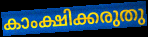
കാംക്ഷിക്കരുതു